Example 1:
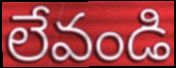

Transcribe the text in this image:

లేవండి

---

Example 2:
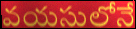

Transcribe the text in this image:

వయసులోనే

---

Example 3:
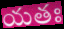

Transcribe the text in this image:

యతః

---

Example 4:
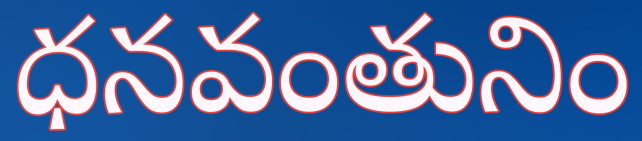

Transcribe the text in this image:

ధనవంతునిం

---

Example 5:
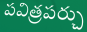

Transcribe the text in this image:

పవిత్రపర్చు